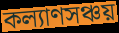
কল্যাণসঞ্চয়